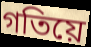
গতিয়ে